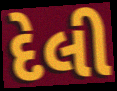
દેલી